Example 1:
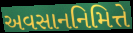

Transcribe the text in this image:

અવસાનનિમિત્તે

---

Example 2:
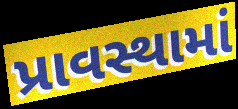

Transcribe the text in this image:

પ્રાવસ્થામાં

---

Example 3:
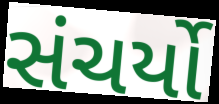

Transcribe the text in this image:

સંચર્યો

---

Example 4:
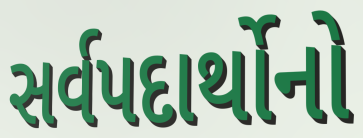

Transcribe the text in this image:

સર્વપદાર્થોનો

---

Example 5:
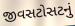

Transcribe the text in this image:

જીવસટોસટનું